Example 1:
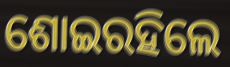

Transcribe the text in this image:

ଶୋଇରହିଲେ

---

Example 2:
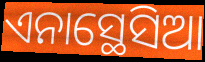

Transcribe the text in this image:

ଏନାସ୍ଥେସିଆ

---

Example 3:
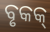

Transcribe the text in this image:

ବୃକକ୍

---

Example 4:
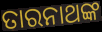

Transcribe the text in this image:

ତାରନାଥଙ୍କ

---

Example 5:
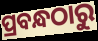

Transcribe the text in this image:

ପ୍ରବନ୍ଧଠାରୁ